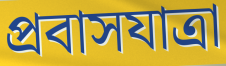
প্রবাসযাত্রা